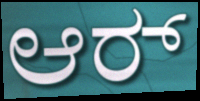
ಆರ್‍